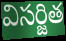
విసర్జిత